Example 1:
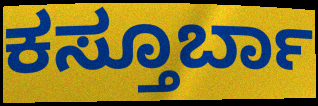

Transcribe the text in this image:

ಕಸ್ತೂರ್ಬಾ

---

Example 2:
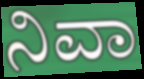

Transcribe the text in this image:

ನಿವಾ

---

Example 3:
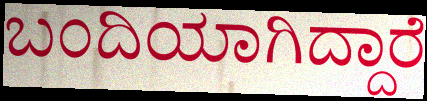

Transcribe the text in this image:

ಬಂದಿಯಾಗಿದ್ದಾರೆ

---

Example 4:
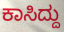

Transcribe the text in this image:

ಕಾಸಿದ್ದು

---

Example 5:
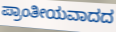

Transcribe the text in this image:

ಪ್ರಾಂತೀಯವಾದದ